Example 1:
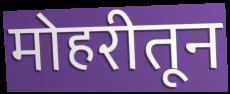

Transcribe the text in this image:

मोहरीतून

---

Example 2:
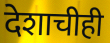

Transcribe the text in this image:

देशाचीही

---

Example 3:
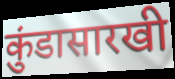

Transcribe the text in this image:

कुंडासारखी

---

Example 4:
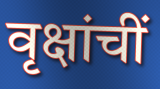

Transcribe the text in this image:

वृक्षांचीं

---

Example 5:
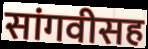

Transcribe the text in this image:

सांगवीसह